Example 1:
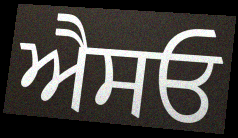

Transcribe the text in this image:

ਐਸਓ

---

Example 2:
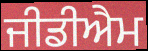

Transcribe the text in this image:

ਜੀਡੀਐਮ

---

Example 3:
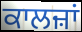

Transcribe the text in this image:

ਕਾਲਜ਼ਾਂ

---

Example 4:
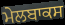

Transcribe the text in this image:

ਮੇਲਬਾਕਸ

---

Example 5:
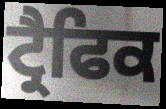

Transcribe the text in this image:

ਟ੍ਰੈਫਿਕ